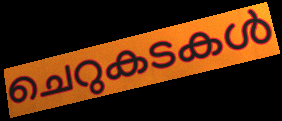
ചെറുകടകൾ